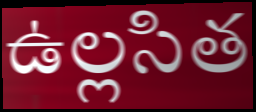
ఉల్లసిత